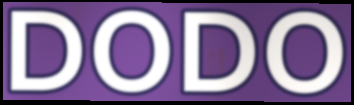
DODO